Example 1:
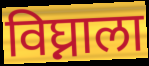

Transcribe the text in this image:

विघ्नाला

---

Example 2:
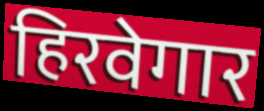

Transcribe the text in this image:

हिरवेगार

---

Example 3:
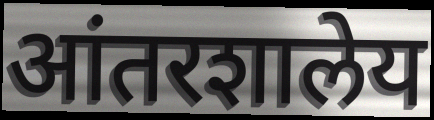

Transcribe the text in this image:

आंतरशालेय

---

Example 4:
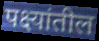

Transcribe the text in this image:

पक्ष्यांतील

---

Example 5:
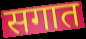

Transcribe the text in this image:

सगात